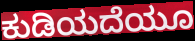
ಕುಡಿಯದೆಯೂ